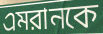
এমরানকে